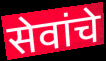
सेवांचे